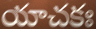
యాచకః